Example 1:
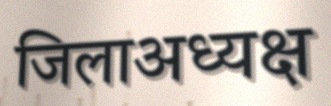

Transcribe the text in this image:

जिलाअध्यक्ष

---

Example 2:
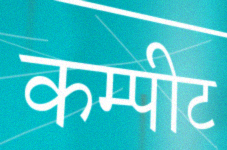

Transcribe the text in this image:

कम्पीट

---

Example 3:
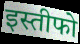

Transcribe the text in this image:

इस्तीफो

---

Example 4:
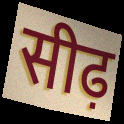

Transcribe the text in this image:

सीढ़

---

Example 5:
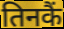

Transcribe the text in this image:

तिनकैं